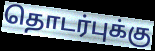
தொடர்புக்கு